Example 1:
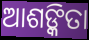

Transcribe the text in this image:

ଆଶଙ୍କିତା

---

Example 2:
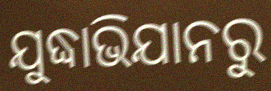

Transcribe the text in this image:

ଯୁଦ୍ଧାଭିଯାନରୁ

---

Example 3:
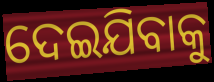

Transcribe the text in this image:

ଦେଇଯିବାକୁ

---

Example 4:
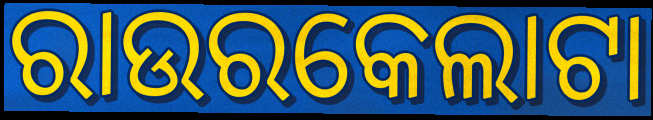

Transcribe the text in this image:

ରାଉରକେଲାଟା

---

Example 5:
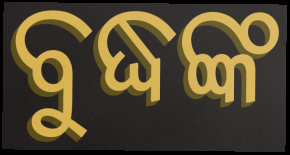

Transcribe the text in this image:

ବୁଦ୍ଧଙ୍କ